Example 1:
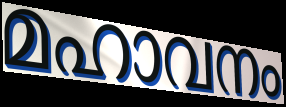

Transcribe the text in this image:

മഹാവനം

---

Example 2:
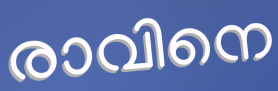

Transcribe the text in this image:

രാവിനെ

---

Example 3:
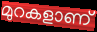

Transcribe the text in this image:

മുറകളാണ്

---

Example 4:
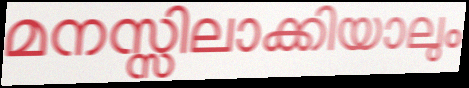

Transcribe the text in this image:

മനസ്സിലാക്കിയാലും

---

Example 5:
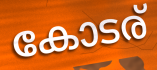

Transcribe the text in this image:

കോടര്